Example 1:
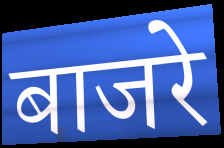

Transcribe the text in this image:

बाजरे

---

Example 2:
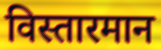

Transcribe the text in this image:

विस्तारमान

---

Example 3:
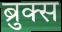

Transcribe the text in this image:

ब्रुक्‍स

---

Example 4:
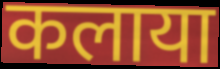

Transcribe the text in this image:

कलाया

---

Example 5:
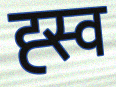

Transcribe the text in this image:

ह्स्व